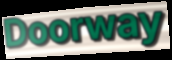
Doorway